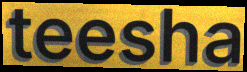
teesha